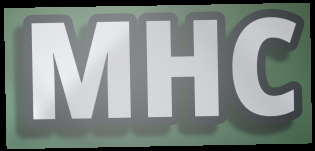
MHC